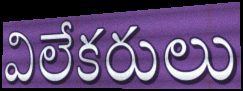
విలేకరులు